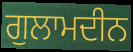
ਗੁਲਾਮਦੀਨ